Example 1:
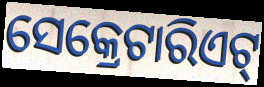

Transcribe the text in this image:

ସେକ୍ରେଟାରିଏଟ୍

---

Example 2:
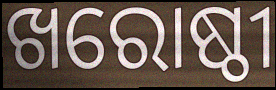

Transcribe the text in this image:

ଖରୋଷ୍ଠୀ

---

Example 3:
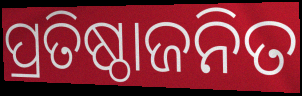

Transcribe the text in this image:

ପ୍ରତିଷ୍ଠାଜନିତ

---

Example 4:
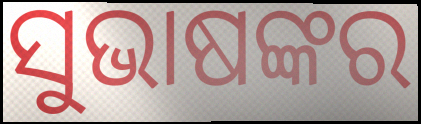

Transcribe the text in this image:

ସୁଭାଷଙ୍କର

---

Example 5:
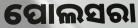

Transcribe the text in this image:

ପୋଲସରା